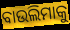
ବାଉଲିମାକୁ